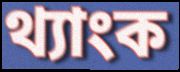
থ্যাংক